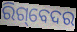
ରିଗ୍‌ବେଦର